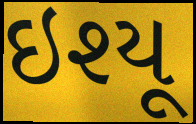
ઇશ્યૂ